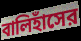
বালিহাঁসের